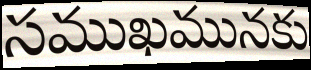
సముఖమునకు